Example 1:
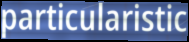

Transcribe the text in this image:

particularistic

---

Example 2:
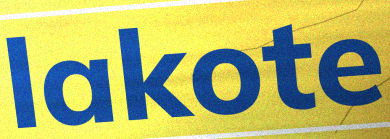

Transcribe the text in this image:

lakote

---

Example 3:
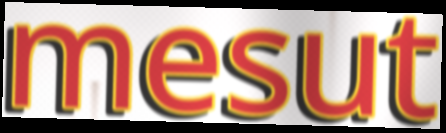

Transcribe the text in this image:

mesut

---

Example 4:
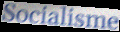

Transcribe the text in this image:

Socialisme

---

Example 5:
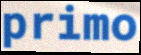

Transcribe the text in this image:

primo